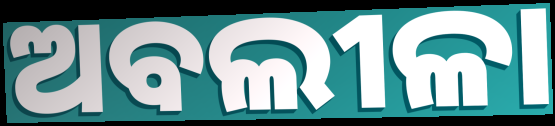
ଅବଲୀଳା